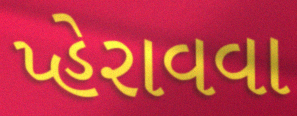
પ્હેરાવવા